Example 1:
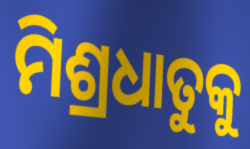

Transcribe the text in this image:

ମିଶ୍ରଧାତୁକୁ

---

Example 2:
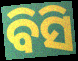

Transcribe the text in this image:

ବିସି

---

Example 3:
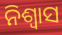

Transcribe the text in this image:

ନିଶ୍ଵାସ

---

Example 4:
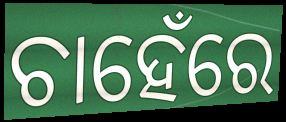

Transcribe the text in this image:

ଚାହେଁରେ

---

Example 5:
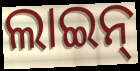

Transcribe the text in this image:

ଲାଇନ୍